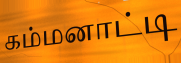
கம்மனாட்டி